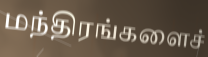
மந்திரங்களைச்